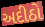
અદીઠો